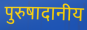
पुरुषादानीय